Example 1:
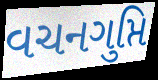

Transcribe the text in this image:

વચનગુપ્તિ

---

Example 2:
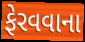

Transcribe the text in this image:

ફેરવવાના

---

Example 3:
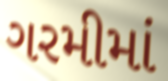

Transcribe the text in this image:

ગરમીમાં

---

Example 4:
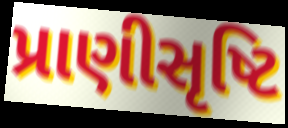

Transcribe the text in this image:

પ્રાણીસૃષ્ટિ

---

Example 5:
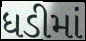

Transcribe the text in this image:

ધડીમાં